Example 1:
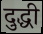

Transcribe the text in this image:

दुद्धी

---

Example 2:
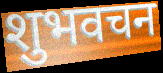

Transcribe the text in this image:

शुभवचन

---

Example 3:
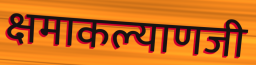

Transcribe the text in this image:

क्षमाकल्याणजी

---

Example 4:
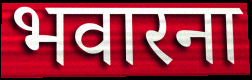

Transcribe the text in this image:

भवारना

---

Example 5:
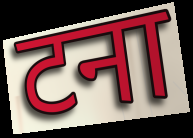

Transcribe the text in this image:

टना